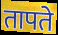
तापते